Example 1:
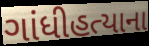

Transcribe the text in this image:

ગાંધીહત્યાના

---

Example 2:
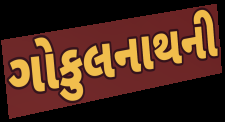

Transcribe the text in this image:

ગોકુલનાથની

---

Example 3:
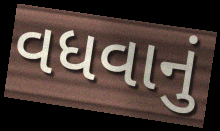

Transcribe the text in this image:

વધવાનું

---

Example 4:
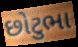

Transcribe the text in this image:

છોટુભા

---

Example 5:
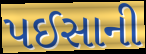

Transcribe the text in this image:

પઈસાની